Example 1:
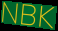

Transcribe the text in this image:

NBK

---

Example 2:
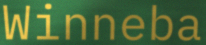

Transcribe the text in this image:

Winneba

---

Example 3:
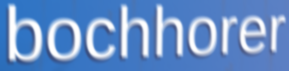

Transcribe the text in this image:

bochhorer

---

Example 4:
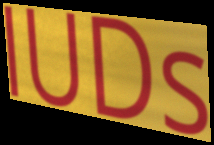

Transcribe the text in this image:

IUDs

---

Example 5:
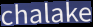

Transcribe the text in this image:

chalake